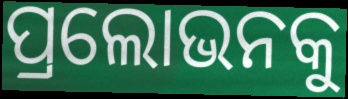
ପ୍ରଲୋଭନକୁ